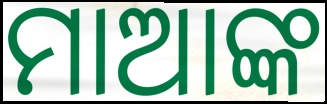
ମାଆଙ୍କ